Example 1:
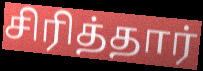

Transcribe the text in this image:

சிரித்தார்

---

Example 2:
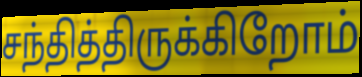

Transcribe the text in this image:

சந்தித்திருக்கிறோம்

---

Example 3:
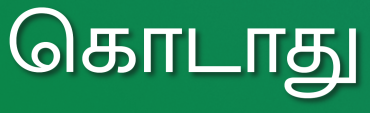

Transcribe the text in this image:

கொடாது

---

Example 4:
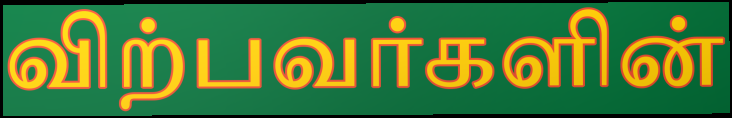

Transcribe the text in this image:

விற்பவர்களின்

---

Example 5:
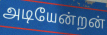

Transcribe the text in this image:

அடியேன்றன்